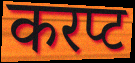
करप्ट